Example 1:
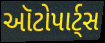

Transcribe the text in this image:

ઑટોપાર્ટ્સ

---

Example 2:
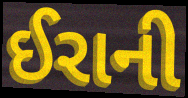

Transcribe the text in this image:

ઈરાની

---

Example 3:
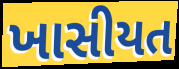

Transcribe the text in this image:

ખાસીયત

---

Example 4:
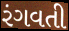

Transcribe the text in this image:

રંગવતી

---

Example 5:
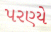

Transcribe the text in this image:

પરણ્યે